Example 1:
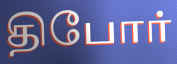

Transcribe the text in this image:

திபோர்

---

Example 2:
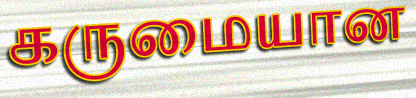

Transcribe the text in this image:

கருமையான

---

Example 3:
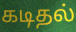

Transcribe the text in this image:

கடிதல்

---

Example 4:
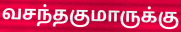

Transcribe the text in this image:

வசந்தகுமாருக்கு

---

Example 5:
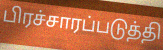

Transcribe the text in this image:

பிரச்சாரப்படுத்தி